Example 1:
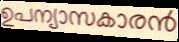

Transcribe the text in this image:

ഉപന്യാസകാരൻ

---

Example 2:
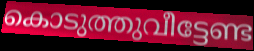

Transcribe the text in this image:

കൊടുത്തുവീട്ടേണ്ട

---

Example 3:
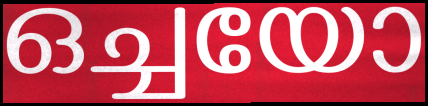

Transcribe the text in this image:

ഒച്ചയോ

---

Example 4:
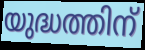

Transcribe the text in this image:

യുദ്ധത്തിന്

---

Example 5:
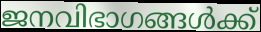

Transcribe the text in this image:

ജനവിഭാഗങ്ങൾക്ക്